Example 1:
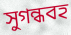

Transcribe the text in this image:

সুগন্ধবহ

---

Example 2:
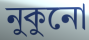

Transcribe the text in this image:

নুকুনো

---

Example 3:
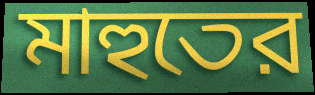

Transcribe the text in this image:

মাহুতের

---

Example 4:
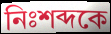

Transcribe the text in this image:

নিঃশব্দকে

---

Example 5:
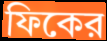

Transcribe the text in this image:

ফিকের